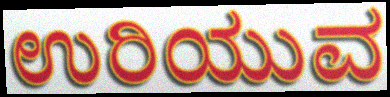
ಉರಿಯುವ